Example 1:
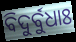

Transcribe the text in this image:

ବିଦୁର୍ବୁଧାଃ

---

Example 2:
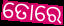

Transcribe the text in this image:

ତୋରେ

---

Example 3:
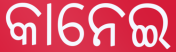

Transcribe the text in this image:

କାନେଇ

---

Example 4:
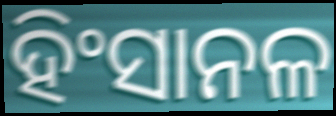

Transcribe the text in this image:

ହିଂସାନଳ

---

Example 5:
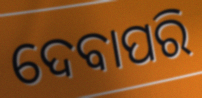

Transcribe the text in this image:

ଦେବାପରି